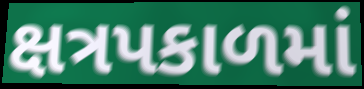
ક્ષત્રપકાળમાં